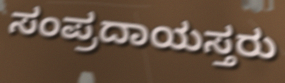
ಸಂಪ್ರದಾಯಸ್ತರು